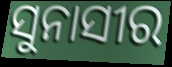
ସୁନାସୀର